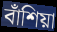
বাঁশিয়া